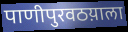
पाणीपुरवठय़ाला